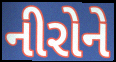
નીરોને